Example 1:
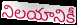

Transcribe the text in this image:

నిలయానికీ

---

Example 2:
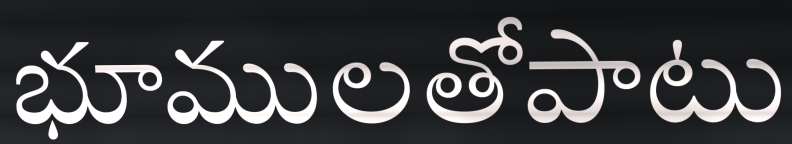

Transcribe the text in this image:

భూములతోపాటు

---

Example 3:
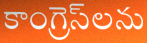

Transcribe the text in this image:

కాంగ్రెస్‌లను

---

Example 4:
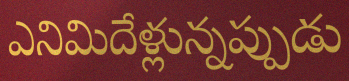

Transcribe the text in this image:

ఎనిమిదేళ్లున్నప్పుడు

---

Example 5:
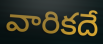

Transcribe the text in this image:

వారికదే